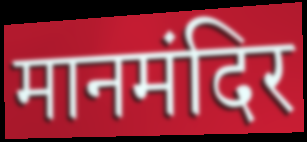
मानमंदिर